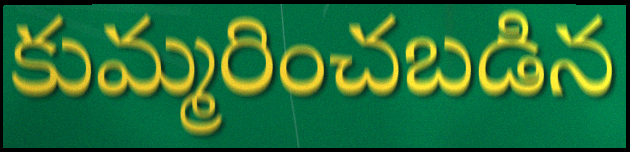
కుమ్మరించబడిన